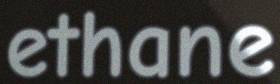
ethane